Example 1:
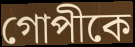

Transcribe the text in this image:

গোপীকে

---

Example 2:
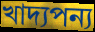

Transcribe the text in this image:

খাদ্যপন্য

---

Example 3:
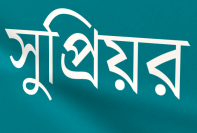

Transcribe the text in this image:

সুপ্রিয়র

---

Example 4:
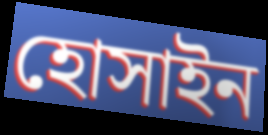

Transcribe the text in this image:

হোসাইন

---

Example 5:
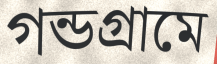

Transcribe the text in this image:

গন্ডগ্রামে